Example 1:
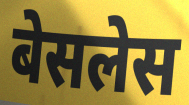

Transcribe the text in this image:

बेसलेस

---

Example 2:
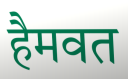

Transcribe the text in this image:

हैमवत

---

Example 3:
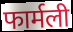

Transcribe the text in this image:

फार्मली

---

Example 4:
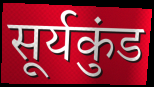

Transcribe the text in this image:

सूर्यकुंड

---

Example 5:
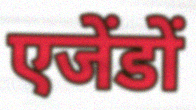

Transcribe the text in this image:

एजेंडों